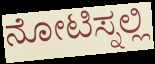
ನೋಟಿಸ್ನಲ್ಲಿ